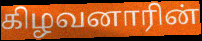
கிழவனாரின்